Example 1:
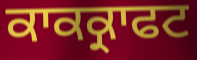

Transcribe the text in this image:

ਕਾਕਕ੍ਰਾਫਟ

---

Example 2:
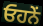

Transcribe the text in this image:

ਓਹਨੇੰ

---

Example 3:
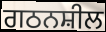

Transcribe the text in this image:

ਗਠਨਸ਼ੀਲ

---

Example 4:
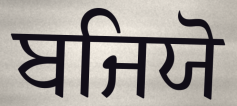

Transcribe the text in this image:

ਬਜਿਯੋ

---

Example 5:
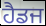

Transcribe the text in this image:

ਹੈਡਜ